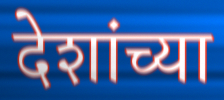
देशांच्या